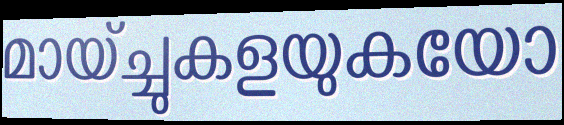
മായ്ച്ചുകളയുകയോ